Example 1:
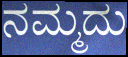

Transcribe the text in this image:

ನಮ್ಮದು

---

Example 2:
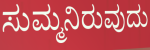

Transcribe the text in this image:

ಸುಮ್ಮನಿರುವುದು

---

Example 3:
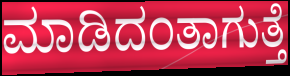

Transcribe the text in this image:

ಮಾಡಿದಂತಾಗುತ್ತೆ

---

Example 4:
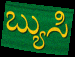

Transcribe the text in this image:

ಬ್ಯುಸಿ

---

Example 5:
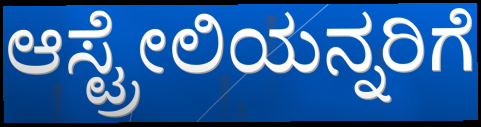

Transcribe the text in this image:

ಆಸ್ಟ್ರೇಲಿಯನ್ನರಿಗೆ